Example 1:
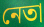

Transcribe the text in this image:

নেতা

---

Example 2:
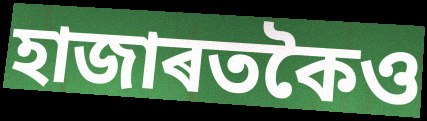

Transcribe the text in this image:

হাজাৰতকৈও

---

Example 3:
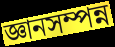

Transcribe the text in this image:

জ্ঞানসম্পন্ন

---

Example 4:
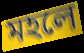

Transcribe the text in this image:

মহলে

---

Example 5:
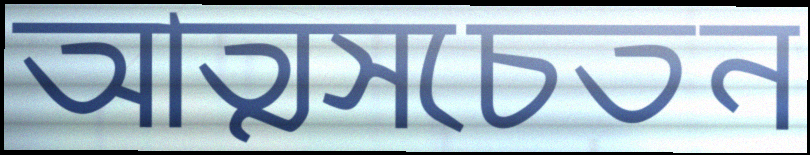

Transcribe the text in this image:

আত্মসচেতন